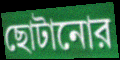
ছোটানোর